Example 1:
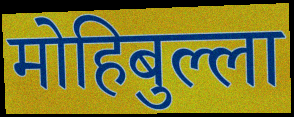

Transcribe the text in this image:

मोहिबुल्ला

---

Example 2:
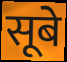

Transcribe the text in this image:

सूबे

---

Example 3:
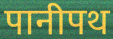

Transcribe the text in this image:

पानीपथ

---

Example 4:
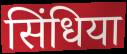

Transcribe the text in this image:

सिंधिया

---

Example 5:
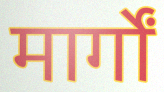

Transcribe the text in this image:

मार्गों